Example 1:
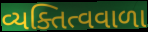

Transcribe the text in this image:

વ્યક્તિત્વવાળા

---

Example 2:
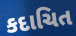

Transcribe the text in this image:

કદાચિત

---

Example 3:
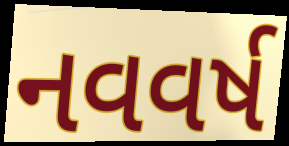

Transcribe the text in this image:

નવવર્ષ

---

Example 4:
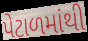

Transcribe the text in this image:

પેટાળમાંથી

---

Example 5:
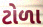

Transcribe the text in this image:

ટોળા